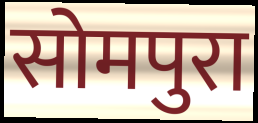
सोमपुरा